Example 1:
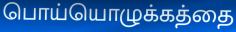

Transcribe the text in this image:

பொய்யொழுக்கத்தை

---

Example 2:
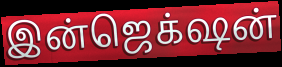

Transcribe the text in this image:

இன்ஜெக்‌ஷன்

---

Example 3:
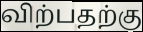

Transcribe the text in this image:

விற்பதற்கு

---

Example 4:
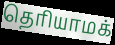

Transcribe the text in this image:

தெரியாமக்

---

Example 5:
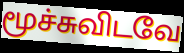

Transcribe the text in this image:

மூச்சுவிடவே